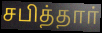
சபித்தார்